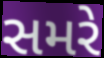
સમરે